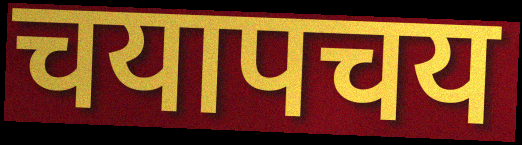
चयापचय